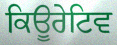
ਕਿਊਰੇਟਿਵ